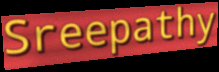
Sreepathy